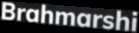
Brahmarshi